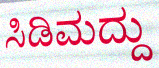
ಸಿಡಿಮದ್ದು